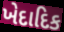
ખેદાદિક